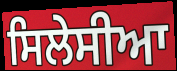
ਸਿਲੇਸੀਆ